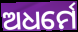
ଅଧର୍ମେ